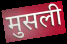
मुसली